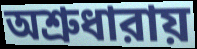
অশ্রুধারায়